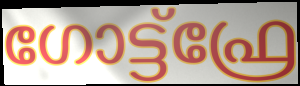
ഗോട്ട്ഫ്രേ